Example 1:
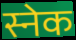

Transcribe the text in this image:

स्‍नेक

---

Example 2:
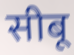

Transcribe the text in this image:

सीबू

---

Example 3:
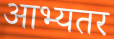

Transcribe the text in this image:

आभ्यतर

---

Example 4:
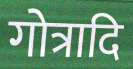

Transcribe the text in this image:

गोत्रादि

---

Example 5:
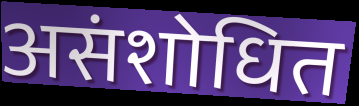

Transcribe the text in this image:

असंशोधित